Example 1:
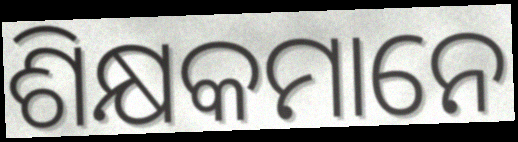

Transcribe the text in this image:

ଶିକ୍ଷକମାନେ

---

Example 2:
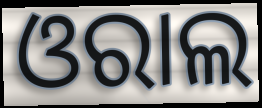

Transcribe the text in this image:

ଓରାଲ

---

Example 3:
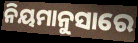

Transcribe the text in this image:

ନିୟମାନୁସାରେ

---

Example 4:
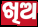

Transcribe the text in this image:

ଖିଅ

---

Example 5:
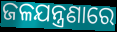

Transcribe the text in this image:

ଜଳଯନ୍ତ୍ରଣାରେ